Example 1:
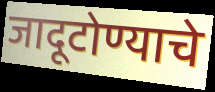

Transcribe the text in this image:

जादूटोण्याचे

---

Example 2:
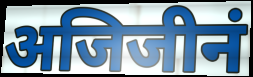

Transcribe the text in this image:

अजिजीनं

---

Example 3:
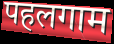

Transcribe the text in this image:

पहलगाम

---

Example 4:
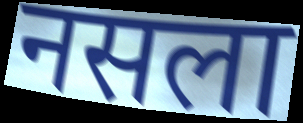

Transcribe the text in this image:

नसला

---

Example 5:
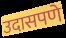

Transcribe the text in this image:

उदासपणे